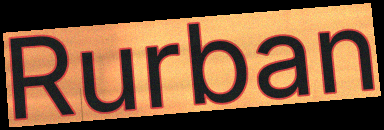
Rurban